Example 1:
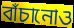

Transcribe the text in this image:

বাঁচানোও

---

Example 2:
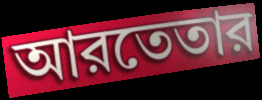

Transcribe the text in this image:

আরতেতার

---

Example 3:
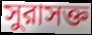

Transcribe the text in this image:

সুরাসক্ত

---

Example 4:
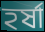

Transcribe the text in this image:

হর্ষা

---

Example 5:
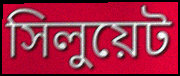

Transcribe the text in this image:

সিলুয়েট